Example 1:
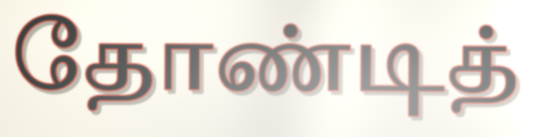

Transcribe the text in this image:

தோண்டித்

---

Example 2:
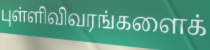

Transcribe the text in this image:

புள்ளிவிவரங்களைக்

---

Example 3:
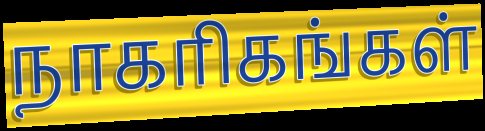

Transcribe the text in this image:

நாகரிகங்கள்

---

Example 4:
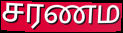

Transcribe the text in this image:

சரணம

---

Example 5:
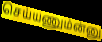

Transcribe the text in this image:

செய்யணும்ன்னு